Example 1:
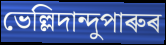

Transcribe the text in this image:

ভেল্লিদান্দুপাৰুৰ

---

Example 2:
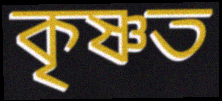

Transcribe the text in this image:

কৃষ্ণত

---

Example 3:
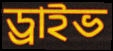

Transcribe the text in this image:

ড্ৰাইভ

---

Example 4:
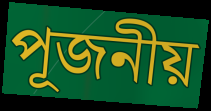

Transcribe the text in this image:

পূজনীয়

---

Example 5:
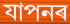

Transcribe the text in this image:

যাপনৰ